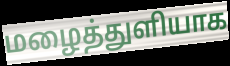
மழைத்துளியாக